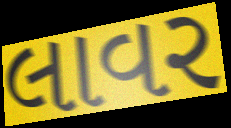
લાવર